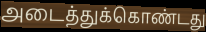
அடைத்துக்கொண்டது